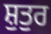
ਸ਼ੁਤੁਰ